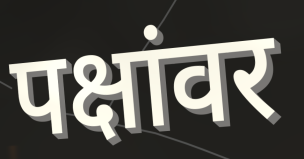
पक्षांवर